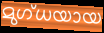
മുഗ്ധയായ